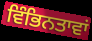
ਵਿੰਭਿਨਤਾਵਾਂ